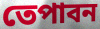
তেপাবন